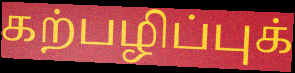
கற்பழிப்புக்